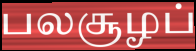
பலசூழப்